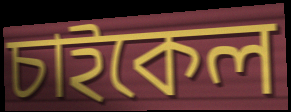
চাইকেল